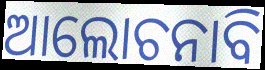
ଆଲୋଚନାବି